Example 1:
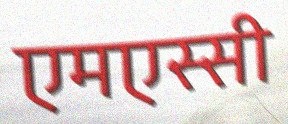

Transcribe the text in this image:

एमएस्सी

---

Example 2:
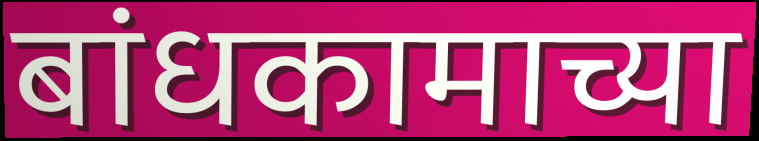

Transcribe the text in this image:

बांधकामाच्या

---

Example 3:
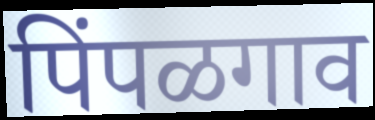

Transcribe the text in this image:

पिंपळगाव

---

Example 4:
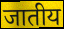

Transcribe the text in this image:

जातीय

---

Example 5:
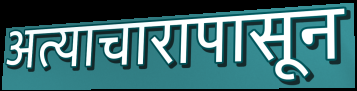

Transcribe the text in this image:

अत्याचारापासून